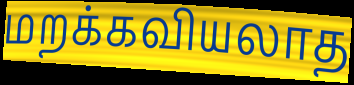
மறக்கவியலாத